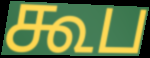
கூப